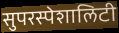
सुपरस्पेशालिटी